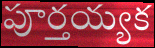
పూర్తయ్యక